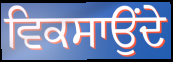
ਵਿਕਸਾਉਂਦੇ